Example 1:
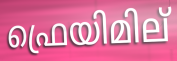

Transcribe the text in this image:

ഫ്രെയിമില്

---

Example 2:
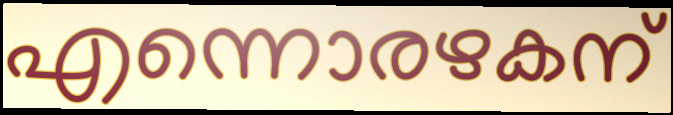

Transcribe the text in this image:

എന്നൊരഴകന്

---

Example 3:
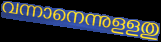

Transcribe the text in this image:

വന്നാനെന്നുളളതു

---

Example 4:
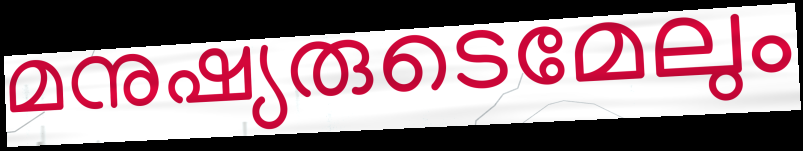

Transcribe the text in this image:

മനുഷ്യരുടെമേലും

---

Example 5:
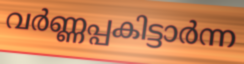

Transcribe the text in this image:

വർണ്ണപ്പകിട്ടാർന്ന